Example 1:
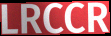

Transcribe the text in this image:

LRCCR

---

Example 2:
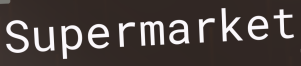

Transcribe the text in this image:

Supermarket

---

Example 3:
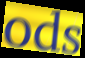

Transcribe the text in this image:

ods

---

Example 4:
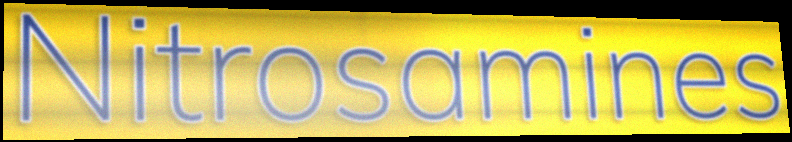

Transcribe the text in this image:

Nitrosamines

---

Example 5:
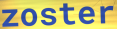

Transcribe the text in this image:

zoster